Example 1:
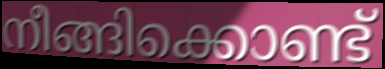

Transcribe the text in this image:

നീങ്ങിക്കൊണ്ട്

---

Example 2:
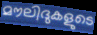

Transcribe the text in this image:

മൗലിദുകളുടെ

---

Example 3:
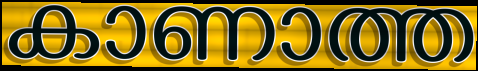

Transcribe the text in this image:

കാണാത്ത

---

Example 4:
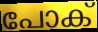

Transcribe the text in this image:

പോക്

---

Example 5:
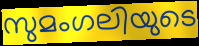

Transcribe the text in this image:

സുമംഗലിയുടെ